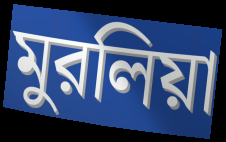
মুরলিয়া